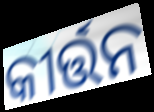
କୀର୍ତ୍ତନ